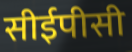
सीईपीसी